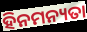
ହିନମନ୍ୟତା